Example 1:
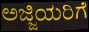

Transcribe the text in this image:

ಅಜ್ಜಿಯರಿಗೆ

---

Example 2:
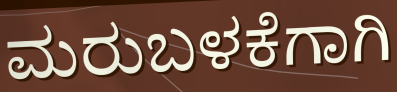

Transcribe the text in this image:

ಮರುಬಳಕೆಗಾಗಿ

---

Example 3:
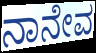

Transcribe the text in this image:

ನಾನೇವ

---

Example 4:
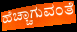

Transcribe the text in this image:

ಹೆಚ್ಚಾಗುವಂತೆ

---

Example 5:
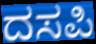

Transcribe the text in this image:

ದಸಪಿ